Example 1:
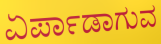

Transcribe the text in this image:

ಏರ್ಪಾಡಾಗುವ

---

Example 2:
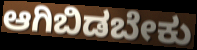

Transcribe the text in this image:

ಆಗಿಬಿಡಬೇಕು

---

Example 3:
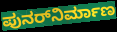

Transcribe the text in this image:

ಪುನರ್‌ನಿರ್ಮಾಣ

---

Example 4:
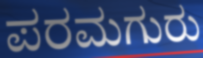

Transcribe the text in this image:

ಪರಮಗುರು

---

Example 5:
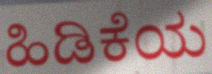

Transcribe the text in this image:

ಹಿಡಿಕೆಯ